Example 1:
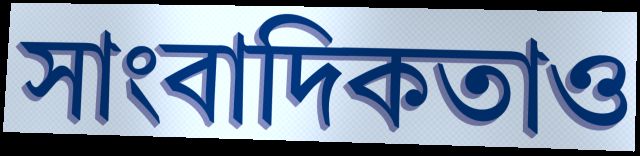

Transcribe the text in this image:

সাংবাদিকতাও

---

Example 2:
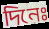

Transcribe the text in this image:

দিনেঃ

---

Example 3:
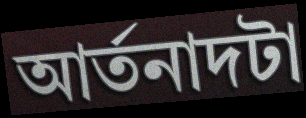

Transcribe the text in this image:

আর্তনাদটা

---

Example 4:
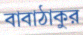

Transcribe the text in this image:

বাবাঠাকুর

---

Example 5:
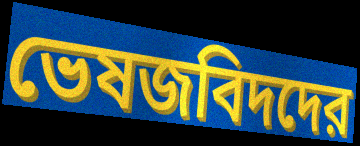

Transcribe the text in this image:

ভেষজবিদদের